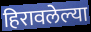
हिरावलेल्या